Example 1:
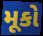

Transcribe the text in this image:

મૂકો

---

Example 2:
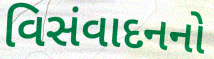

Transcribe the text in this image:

વિસંવાદનનો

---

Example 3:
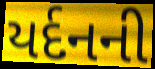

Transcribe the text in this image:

યર્દનની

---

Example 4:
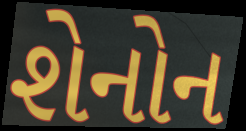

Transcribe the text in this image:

શેનોન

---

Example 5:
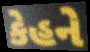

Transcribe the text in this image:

કેહને